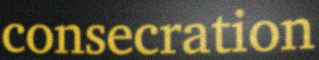
consecration